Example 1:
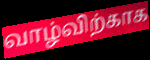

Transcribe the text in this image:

வாழ்விற்காக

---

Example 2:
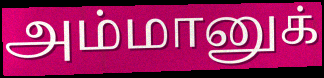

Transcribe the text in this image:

அம்மானுக்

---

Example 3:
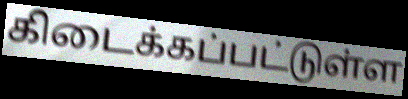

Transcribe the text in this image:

கிடைக்கப்பட்டுள்ள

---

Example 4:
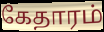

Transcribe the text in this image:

கேதாரம்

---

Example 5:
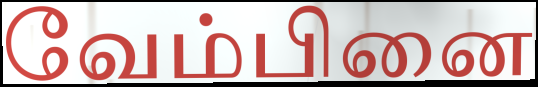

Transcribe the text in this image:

வேம்பினை